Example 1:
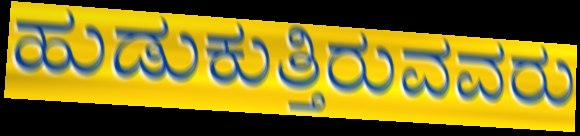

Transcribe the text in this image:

ಹುಡುಕುತ್ತಿರುವವರು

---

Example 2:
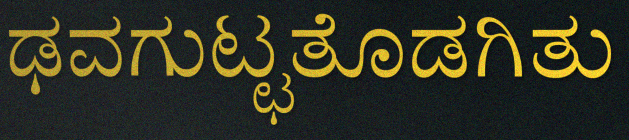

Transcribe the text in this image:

ಢವಗುಟ್ಟತೊಡಗಿತು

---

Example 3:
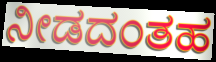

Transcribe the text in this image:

ನೀಡದಂತಹ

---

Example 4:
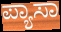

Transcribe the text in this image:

ಪ್ಯಾಸಾ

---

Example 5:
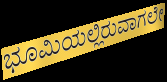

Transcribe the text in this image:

ಭೂಮಿಯಲ್ಲಿರುವಾಗಲೇ